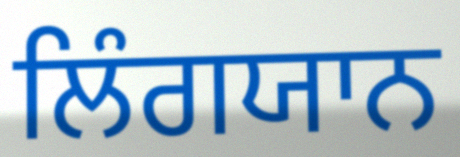
ਲਿੰਗਯਾਨ